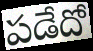
పడేదో